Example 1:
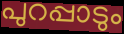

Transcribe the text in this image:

പുറപ്പാടും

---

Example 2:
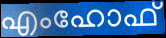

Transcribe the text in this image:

എംഹോഫ്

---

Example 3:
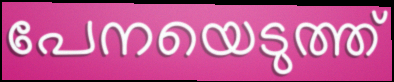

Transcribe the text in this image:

പേനയെടുത്ത്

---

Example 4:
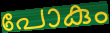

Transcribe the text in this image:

പോകും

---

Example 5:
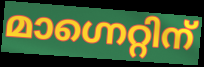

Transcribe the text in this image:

മാഗ്നെറ്റിന്